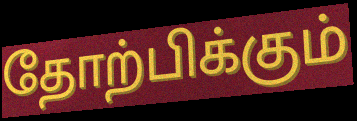
தோற்பிக்கும்